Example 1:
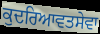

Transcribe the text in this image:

ਕੁਦਰਿਆਵਤਸੇਵਾ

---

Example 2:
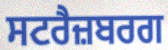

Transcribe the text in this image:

ਸਟਰੈਜ਼ਬਰਗ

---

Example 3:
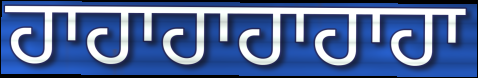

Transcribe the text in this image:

ਹਾਹਾਹਾਹਾਹਾਹਾ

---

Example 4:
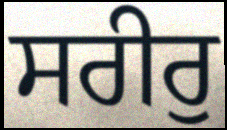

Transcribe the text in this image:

ਸਰੀਰੁ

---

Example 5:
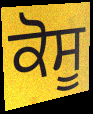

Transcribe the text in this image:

ਕੋਸੂ